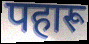
पहारू